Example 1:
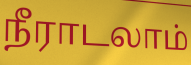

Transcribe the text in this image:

நீராடலாம்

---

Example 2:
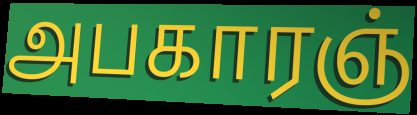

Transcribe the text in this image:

அபகாரஞ்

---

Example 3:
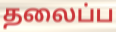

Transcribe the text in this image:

தலைப்ப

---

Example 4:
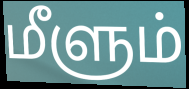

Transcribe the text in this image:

மீளும்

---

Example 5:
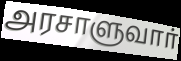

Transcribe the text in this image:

அரசாளுவார்